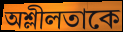
অশ্লীলতাকে